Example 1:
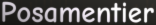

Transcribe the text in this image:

Posamentier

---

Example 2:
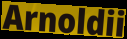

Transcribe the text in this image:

Arnoldii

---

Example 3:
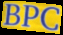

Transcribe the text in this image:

BPC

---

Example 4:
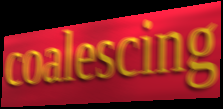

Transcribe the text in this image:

coalescing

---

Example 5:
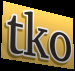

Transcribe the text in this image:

tko